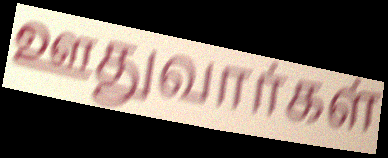
ஊதுவார்கள்